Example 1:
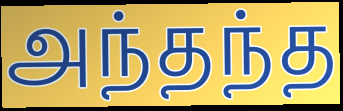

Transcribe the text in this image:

அந்தந்த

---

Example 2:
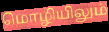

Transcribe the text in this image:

மொழியிலும்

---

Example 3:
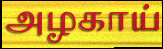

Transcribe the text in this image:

அழகாய்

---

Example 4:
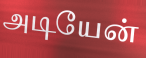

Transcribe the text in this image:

அடியேன்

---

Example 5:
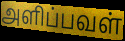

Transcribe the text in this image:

அளிப்பவள்